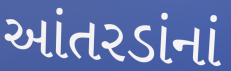
આંતરડાંનાં